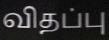
விதப்பு